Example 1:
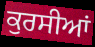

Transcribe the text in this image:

ਕੁਰਸੀਆਂ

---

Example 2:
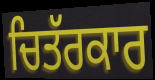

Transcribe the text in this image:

ਚਿਤੱਰਕਾਰ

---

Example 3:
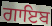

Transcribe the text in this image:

ਗਾਇਬ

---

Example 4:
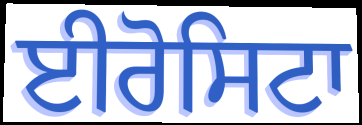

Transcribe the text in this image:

ਈਰੋਸਿਟਾ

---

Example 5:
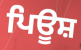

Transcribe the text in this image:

ਪਿਊਸ਼